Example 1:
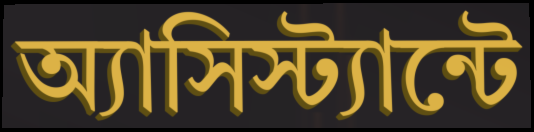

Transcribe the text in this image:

অ্যাসিস্ট্যান্টে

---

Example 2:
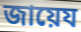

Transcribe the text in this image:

জায়েয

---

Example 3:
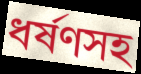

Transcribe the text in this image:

ধর্ষণসহ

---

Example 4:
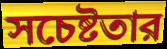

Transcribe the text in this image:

সচেষ্টতার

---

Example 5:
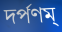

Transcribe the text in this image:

দর্পণম্